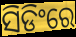
ସିଡିଂରେ